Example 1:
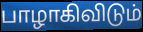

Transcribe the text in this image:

பாழாகிவிடும்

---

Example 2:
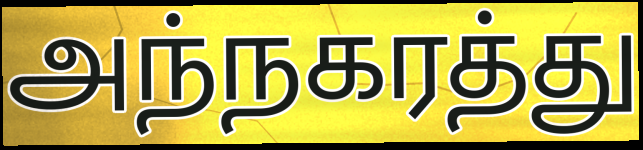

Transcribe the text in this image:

அந்நகரத்து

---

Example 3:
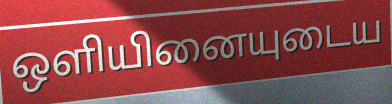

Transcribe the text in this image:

ஒளியினையுடைய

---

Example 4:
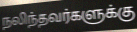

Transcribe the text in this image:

நலிந்தவர்களுக்கு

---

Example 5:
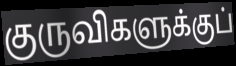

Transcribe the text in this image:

குருவிகளுக்குப்